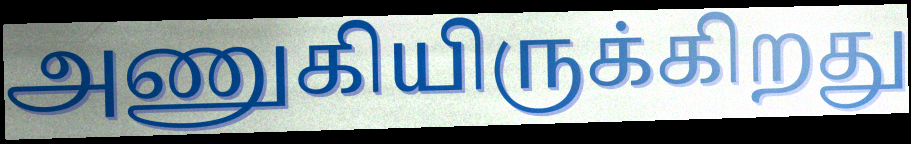
அணுகியிருக்கிறது